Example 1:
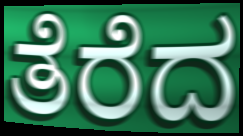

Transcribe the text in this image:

ತೆರೆದ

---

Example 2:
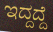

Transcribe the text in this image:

ಇದ್ದದ್ದೆ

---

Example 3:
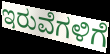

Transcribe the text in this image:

ಇರುವೆಗಳಿಗೆ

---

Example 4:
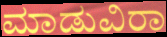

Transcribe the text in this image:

ಮಾಡುವಿರಾ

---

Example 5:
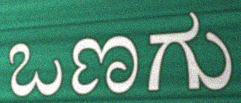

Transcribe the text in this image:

ಒಣಗು